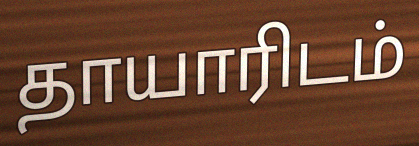
தாயாரிடம்